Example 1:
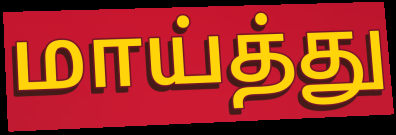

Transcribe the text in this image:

மாய்த்து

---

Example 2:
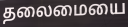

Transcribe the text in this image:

தலைமையை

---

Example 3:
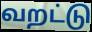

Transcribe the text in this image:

வறட்டு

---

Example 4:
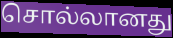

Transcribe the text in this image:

சொல்லானது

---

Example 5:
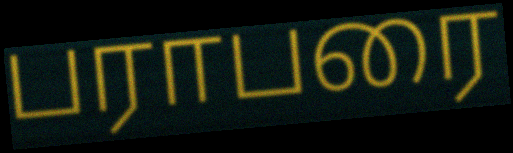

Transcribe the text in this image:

பராபரை